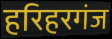
हरिहरगंज